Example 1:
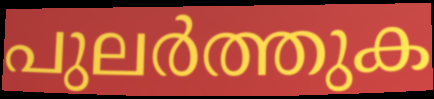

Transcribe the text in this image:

പുലർത്തുക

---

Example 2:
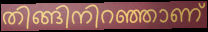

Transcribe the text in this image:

തിങ്ങിനിറഞ്ഞാണ്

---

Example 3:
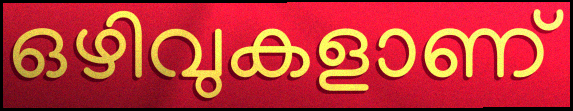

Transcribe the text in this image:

ഒഴിവുകളാണ്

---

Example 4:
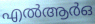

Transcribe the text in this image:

എൽആർഒ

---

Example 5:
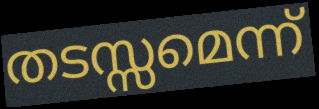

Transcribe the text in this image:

തടസ്സമെന്ന്